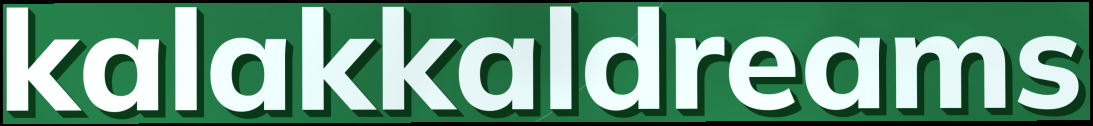
kalakkaldreams